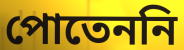
পোতেননি